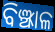
ବିଞ୍ଝାଳ